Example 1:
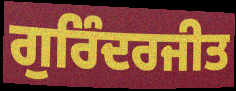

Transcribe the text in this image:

ਗੁਰਿੰਦਰਜੀਤ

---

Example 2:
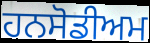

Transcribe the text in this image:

ਹਨਸੋਡੀਅਮ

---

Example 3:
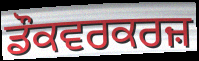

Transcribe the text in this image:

ਡੌਕਵਰਕਰਜ਼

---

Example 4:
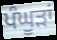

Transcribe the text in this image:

ਪੰਘੂੜਾਂ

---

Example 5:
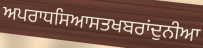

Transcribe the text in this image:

ਅਪਰਾਧਸਿਆਸਤਖਬਰਾਂਦੁਨੀਆ